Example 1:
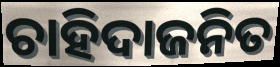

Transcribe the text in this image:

ଚାହିଦାଜନିତ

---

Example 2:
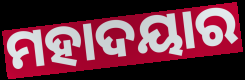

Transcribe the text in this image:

ମହାଦୟାର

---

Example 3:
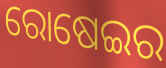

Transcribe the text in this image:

ରୋଷେଇର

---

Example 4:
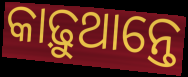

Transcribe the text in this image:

କାଢ଼ୁଥାନ୍ତେ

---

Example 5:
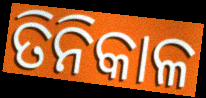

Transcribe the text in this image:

ତିନିକାଳ